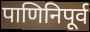
पाणिनिपूर्व